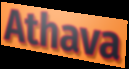
Athava